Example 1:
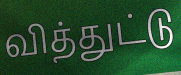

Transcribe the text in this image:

வித்துட்டு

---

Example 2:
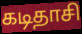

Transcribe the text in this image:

கடிதாசி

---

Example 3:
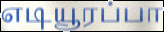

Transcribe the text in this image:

எடியூரப்பா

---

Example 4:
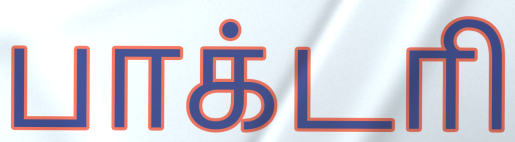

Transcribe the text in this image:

பாக்டரி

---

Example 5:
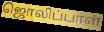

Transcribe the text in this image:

ஜொலிப்பாள்